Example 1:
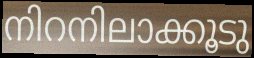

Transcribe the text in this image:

നിറനിലാക്കൂടു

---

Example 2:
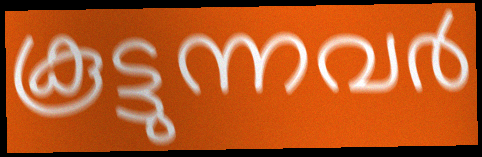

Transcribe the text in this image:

കൂട്ടുന്നവർ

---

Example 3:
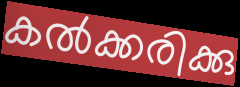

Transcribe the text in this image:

കൽക്കരിക്കു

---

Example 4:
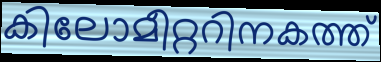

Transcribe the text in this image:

കിലോമീറ്ററിനകത്ത്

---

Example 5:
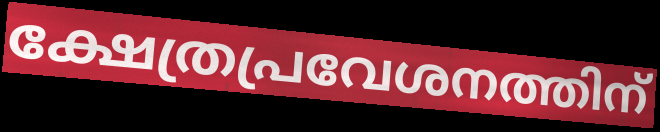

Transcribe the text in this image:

ക്ഷേത്രപ്രവേശനത്തിന്